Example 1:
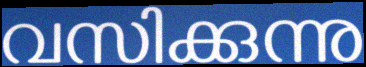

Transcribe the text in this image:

വസിക്കുന്നു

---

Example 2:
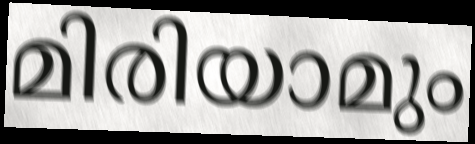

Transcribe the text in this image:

മിരിയാമും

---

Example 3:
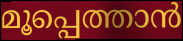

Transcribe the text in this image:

മൂപ്പെത്താൻ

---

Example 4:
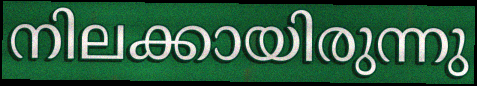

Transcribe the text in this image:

നിലക്കായിരുന്നു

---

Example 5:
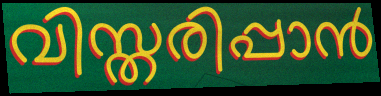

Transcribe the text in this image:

വിസ്തരിപ്പാൻ